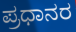
ಪ್ರಧಾನರ